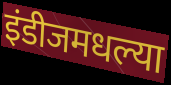
इंडीजमधल्या